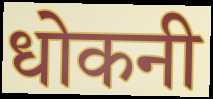
धोकनी